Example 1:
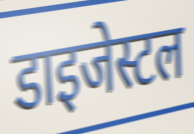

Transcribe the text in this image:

डाइजेस्टल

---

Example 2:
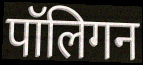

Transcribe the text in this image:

पॉलिगन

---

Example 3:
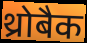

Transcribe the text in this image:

थ्रोबैक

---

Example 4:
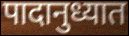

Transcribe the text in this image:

पादानुध्यात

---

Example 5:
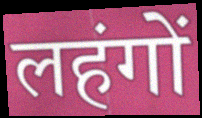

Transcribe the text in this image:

लहंगों